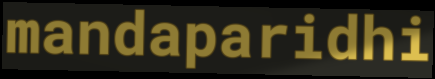
mandaparidhi